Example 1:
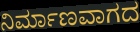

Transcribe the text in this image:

ನಿರ್ಮಾಣವಾಗದ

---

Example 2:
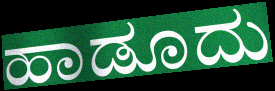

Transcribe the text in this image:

ಹಾಡೂದು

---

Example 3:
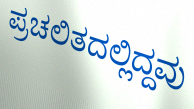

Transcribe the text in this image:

ಪ್ರಚಲಿತದಲ್ಲಿದ್ದವು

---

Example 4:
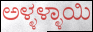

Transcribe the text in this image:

ಅಳ್ಳಳ್ಳಾಯಿ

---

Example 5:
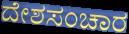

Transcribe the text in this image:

ದೇಶಸಂಚಾರ